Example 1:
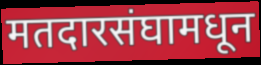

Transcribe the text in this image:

मतदारसंघामधून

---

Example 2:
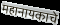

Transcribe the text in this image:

महानायकाचे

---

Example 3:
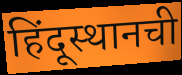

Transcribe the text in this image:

हिंदूस्थानची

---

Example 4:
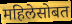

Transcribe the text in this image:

महिलेसोबत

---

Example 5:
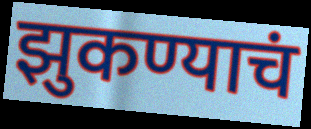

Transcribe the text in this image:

झुकण्याचं